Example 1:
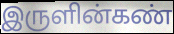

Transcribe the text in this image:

இருளின்கண்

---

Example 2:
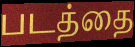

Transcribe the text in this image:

படத்தை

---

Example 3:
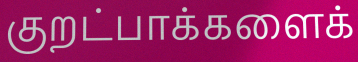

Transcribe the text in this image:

குறட்பாக்களைக்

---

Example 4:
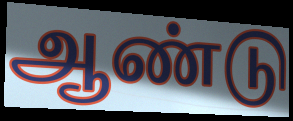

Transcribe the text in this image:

ஆண்டு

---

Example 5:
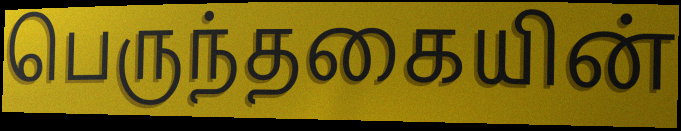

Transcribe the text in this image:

பெருந்தகையின்